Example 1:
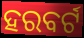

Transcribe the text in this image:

ହରବର୍ଟ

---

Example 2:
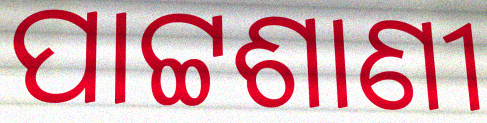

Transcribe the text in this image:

ପାଟ୍ଟଶାଣୀ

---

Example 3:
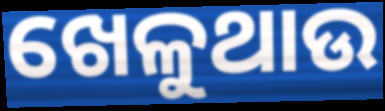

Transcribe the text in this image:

ଖେଳୁଥାଉ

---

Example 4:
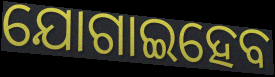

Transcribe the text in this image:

ଯୋଗାଇହେବ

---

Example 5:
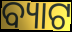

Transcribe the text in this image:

ବ୍ୟାଟ